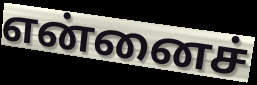
என்னைச்